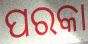
ପରକା